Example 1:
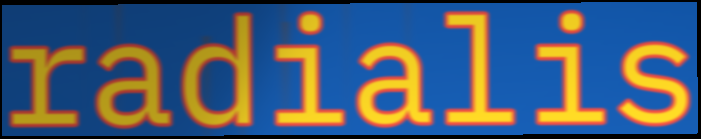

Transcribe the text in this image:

radialis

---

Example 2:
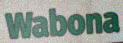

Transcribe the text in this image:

Wabona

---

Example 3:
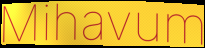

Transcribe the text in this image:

Mihavum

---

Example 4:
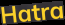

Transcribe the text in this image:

Hatra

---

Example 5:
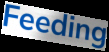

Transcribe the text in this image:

Feeding